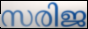
സരിജ